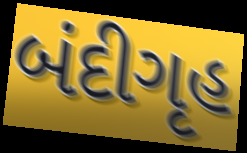
બંદીગૃહ